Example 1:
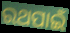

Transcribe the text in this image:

ରଥପାଇଁ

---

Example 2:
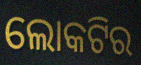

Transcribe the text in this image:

ଲୋକଟିର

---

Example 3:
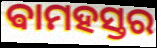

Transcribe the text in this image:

ଵାମହସ୍ତର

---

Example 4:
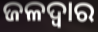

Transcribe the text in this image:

ଜଳଦ୍ୱାର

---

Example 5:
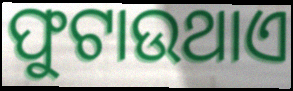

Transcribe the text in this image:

ଫୁଟାଉଥାଏ